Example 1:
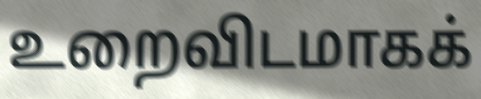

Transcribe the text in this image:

உறைவிடமாகக்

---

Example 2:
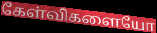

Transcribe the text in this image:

கேள்விகளையோ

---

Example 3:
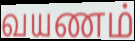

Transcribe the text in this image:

வயணம்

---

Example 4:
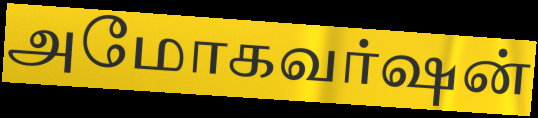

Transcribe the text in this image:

அமோகவர்ஷன்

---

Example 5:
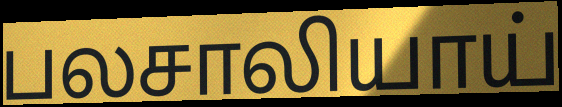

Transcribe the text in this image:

பலசாலியாய்